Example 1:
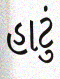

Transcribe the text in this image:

હાટું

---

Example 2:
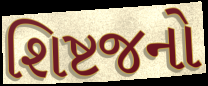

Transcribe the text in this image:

શિષ્ટજનો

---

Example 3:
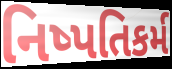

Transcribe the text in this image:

નિષ્પતિકર્મ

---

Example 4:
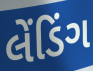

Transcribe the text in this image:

લેંડિંગ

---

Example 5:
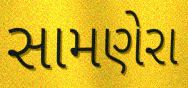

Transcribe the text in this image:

સામણેરા